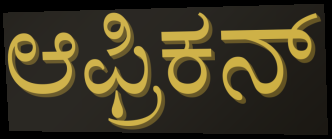
ಆಫ್ರಿಕನ್